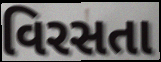
વિરસતા